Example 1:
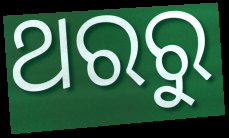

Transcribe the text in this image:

ଥରରୁ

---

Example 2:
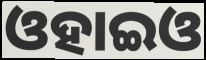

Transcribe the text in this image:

ଓହାଇଓ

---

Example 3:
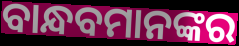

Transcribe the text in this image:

ବାନ୍ଧବମାନଙ୍କର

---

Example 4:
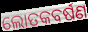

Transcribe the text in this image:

ଲୋତକବର୍ଷଣ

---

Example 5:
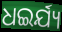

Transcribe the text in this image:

ଧଇର୍ଯ୍ୟ